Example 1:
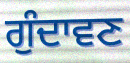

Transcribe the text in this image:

ਗੁੰਦਾਵਣ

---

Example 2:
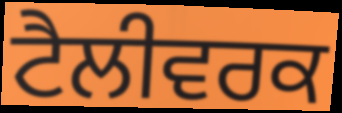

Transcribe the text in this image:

ਟੈਲੀਵਰਕ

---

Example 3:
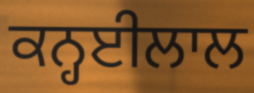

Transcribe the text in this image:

ਕਨ੍ਹਈਲਾਲ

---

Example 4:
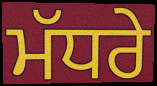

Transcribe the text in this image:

ਮੱਧਰੇ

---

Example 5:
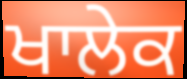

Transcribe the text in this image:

ਖਾਲੇਕ